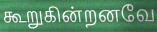
கூறுகின்றனவே